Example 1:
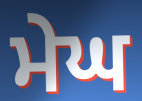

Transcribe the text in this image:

ਮੇਘ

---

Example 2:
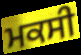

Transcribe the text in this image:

ਮਕਸੀ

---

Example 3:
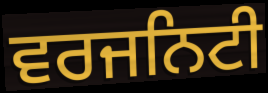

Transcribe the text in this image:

ਵਰਜਨਿਟੀ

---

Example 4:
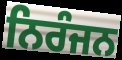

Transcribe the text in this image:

ਨਿਰੰਜਨ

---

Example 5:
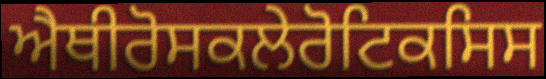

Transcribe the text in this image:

ਐਥੀਰੋਸਕਲੇਰੋਟਿਕਸਿਸ